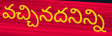
వచ్చినదనిన్ని